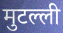
मुटल्ली